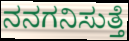
ನನಗನಿಸುತ್ತೆ